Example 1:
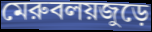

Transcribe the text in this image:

মেরুবলয়জুড়ে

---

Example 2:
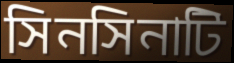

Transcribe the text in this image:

সিনসিনাটি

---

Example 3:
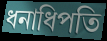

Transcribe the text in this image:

ধনাধিপতি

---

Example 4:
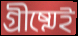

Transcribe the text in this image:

গ্রীষ্মেই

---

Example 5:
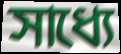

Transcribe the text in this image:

সাধ্যে